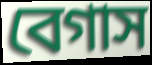
বেগাস